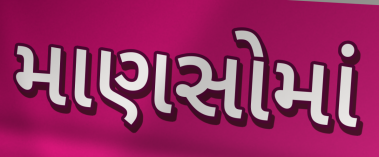
માણસોમાં